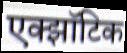
एक्झॉटिक